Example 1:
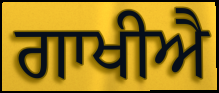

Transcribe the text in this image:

ਗਾਖੀਐ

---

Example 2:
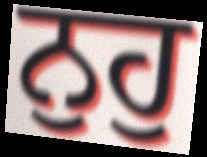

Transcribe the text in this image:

ਨੁਹੁ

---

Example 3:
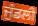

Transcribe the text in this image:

ਜੁੰਡਲੀ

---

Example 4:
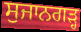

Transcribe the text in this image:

ਸੁਜਾਨਗੜ੍ਹ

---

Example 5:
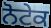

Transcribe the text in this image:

ਨੋਟੇਕ